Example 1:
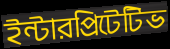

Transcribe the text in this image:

ইন্টারপ্রিটেটিভ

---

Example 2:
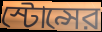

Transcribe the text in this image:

স্টোন্সের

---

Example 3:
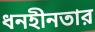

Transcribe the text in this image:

ধনহীনতার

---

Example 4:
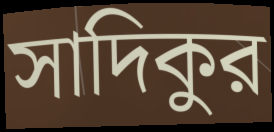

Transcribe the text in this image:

সাদিকুর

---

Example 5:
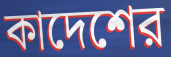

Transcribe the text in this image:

কাদেশের